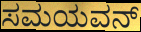
ಸಮಯವನ್